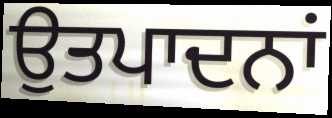
ਉਤਪਾਦਨਾਂ